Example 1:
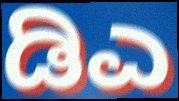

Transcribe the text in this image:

ಡಿಎ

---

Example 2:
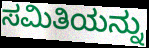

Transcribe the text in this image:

ಸಮಿತಿಯನ್ನು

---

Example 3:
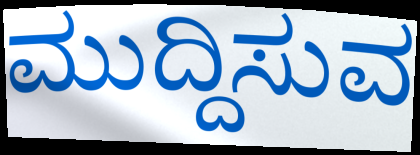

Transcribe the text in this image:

ಮುದ್ದಿಸುವ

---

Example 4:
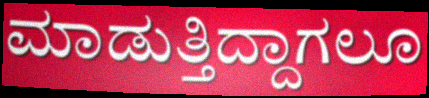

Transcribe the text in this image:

ಮಾಡುತ್ತಿದ್ದಾಗಲೂ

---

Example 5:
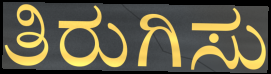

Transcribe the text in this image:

ತಿರುಗಿಸು